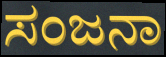
ಸಂಜನಾ